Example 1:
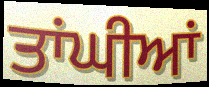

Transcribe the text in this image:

ਤਾਂਘੀਆਂ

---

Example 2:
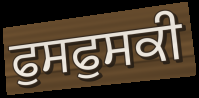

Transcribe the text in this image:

ਫੁਸਫੁਸਕੀ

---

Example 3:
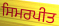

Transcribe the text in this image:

ਸਿਮਰਪੀਤ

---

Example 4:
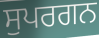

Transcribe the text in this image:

ਸੁਪਰਗਨ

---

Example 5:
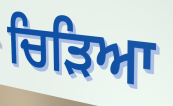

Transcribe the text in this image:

ਚਿੜਿਆ